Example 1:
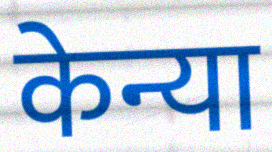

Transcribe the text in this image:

केन्या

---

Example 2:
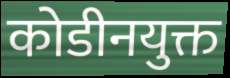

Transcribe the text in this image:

कोडीनयुक्त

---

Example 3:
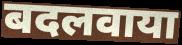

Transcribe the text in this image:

बदलवाया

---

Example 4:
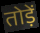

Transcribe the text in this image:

तोड़ें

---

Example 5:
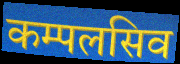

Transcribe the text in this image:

कम्पलसिव